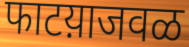
फाटय़ाजवळ